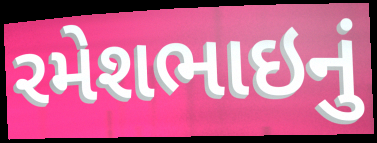
રમેશભાઇનું